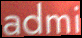
admi